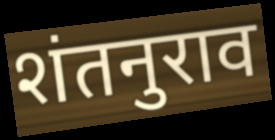
शंतनुराव